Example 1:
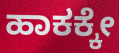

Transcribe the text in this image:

ಹಾಕಕ್ಕೇ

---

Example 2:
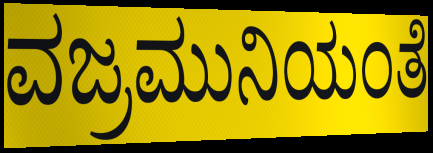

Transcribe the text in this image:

ವಜ್ರಮುನಿಯಂತೆ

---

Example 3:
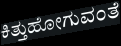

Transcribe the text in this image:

ಕಿತ್ತುಹೋಗುವಂತೆ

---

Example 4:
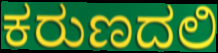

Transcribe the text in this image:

ಕರುಣದಲಿ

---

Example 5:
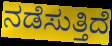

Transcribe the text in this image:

ನಡೆಸುತ್ತಿದೆ